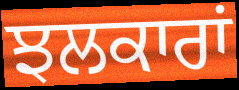
ਝਲਕਾਰਾਂ